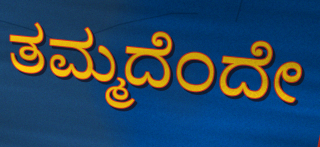
ತಮ್ಮದೆಂದೇ